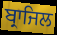
ਬ੍ਰਾਜਿਲ